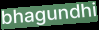
bhagundhi